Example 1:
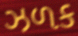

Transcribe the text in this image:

ઝળક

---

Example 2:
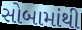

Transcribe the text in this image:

સોબામાંથી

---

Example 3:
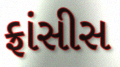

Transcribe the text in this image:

ફ્રાંસીસ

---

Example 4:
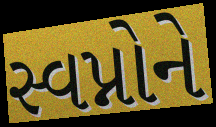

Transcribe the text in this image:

સ્વપ્નોને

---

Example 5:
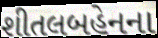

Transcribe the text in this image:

શીતલબહેનના